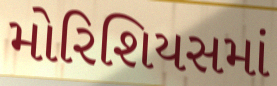
મોરિશિયસમાં